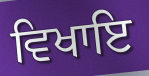
ਵਿਖਾਇ